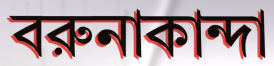
বরুনাকান্দা